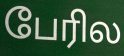
பேரில